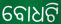
ବୋଧଟି